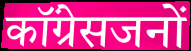
कॉंग्रेसजनों